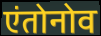
एंतोनोव